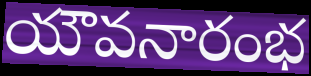
యౌవనారంభ